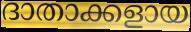
ദാതാക്കളായ